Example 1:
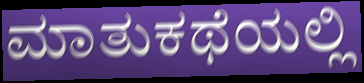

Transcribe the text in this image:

ಮಾತುಕಥೆಯಲ್ಲಿ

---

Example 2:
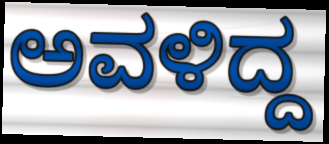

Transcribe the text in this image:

ಅವಳಿದ್ದ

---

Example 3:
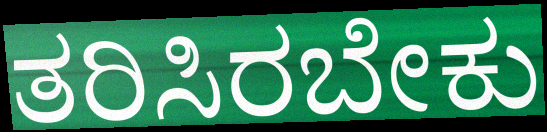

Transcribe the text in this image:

ತರಿಸಿರಬೇಕು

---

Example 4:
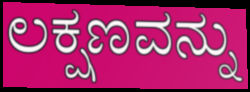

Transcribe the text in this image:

ಲಕ್ಷಣವನ್ನು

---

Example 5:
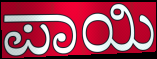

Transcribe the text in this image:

ಪಾಯಿ